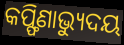
କପ୍ଫିଣାଭ୍ୟୁଦୟ